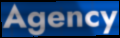
Agency